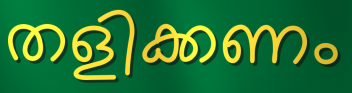
തളിക്കണം